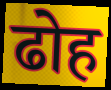
ढोह